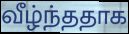
வீழ்ந்ததாக